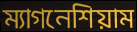
ম্যাগনেশিয়াম